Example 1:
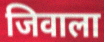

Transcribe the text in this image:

जिवाला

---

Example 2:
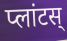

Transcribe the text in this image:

प्लांटस्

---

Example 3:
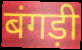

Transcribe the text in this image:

बंगड़ी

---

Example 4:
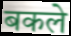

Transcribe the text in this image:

बकले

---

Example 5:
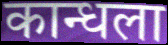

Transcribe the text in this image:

कान्धला